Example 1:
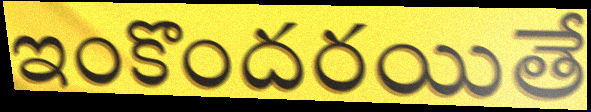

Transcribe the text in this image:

ఇంకొందరయితే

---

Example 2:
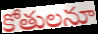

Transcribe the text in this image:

కోతులనూ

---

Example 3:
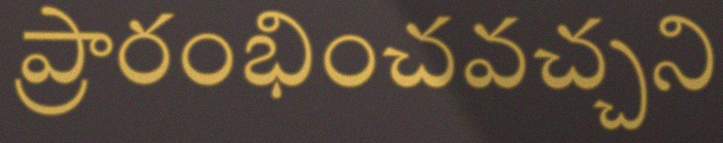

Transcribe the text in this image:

ప్రారంభించవచ్చని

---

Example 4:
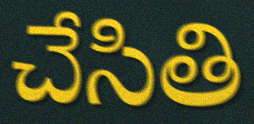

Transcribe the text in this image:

చేసితి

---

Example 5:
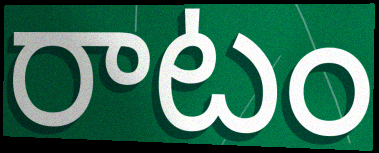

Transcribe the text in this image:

రాటం